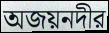
অজয়নদীর